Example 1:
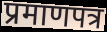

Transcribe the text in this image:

प्रमाणपत्र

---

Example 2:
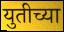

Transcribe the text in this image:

युतीच्या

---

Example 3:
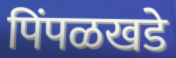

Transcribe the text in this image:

पिंपळखडे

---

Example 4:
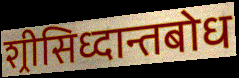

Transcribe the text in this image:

श्रीसिध्दान्तबोध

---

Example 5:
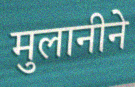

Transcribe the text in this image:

मुलानीने